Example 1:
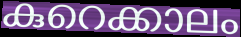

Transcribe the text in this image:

കുറെക്കാലം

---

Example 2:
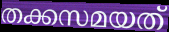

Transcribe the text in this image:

തക്കസമയത്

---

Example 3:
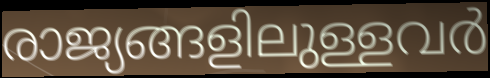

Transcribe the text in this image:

രാജ്യങ്ങളിലുള്ളവർ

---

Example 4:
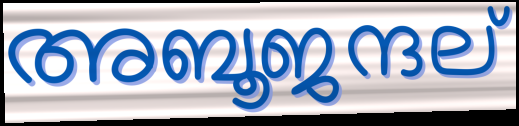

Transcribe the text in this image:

അബൂജന്ദല്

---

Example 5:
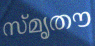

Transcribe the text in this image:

സ്മൃതൗ